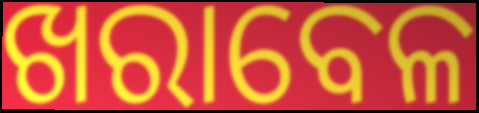
ଖରାବେଳ